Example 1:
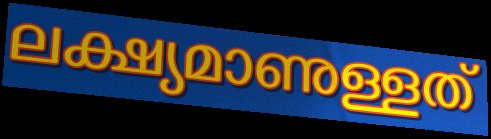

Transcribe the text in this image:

ലക്ഷ്യമാണുള്ളത്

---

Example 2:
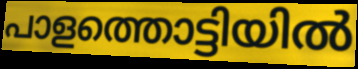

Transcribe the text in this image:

പാളത്തൊട്ടിയിൽ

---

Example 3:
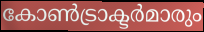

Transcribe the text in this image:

കോൺട്രാക്ടർമാരും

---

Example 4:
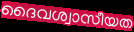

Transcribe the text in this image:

ദൈവശ്വാസീയത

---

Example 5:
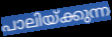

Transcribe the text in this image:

പാലിയ്ക്കുന്ന